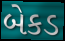
બેકડ